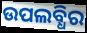
ଉପଲବ୍ଧିର